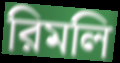
রিমলি